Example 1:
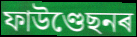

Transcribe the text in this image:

ফাউণ্ডেছনৰ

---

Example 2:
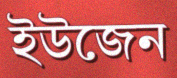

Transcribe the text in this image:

ইউজেন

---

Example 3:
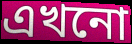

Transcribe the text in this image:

এখনো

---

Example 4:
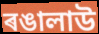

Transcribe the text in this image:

ৰঙালাউ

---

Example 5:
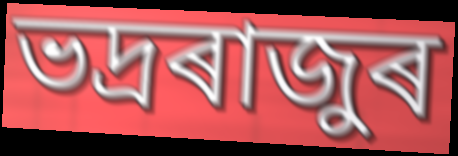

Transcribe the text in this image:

ভদ্ৰৰাজুৰ